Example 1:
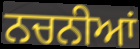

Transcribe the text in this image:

ਨਚਨੀਆਂ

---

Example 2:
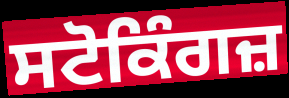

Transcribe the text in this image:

ਸਟੋਕਿੰਗਜ਼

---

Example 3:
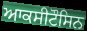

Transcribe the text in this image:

ਆਕਸੀਟੌਸਿਨ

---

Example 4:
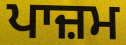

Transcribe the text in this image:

ਪਾਜ਼ਮ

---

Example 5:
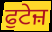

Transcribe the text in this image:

ਫੁਟੇਜ਼